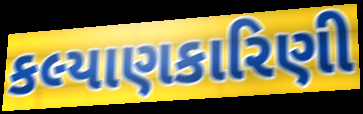
કલ્યાણકારિણી